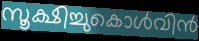
സൂക്ഷിച്ചുകൊൾവിൻ